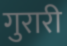
गुरारी